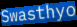
Swasthyo